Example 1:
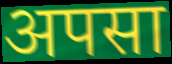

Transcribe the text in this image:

अपसा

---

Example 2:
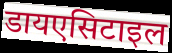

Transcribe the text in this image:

डायएसिटाइल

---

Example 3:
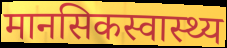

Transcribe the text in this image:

मानसिकस्वास्थ्य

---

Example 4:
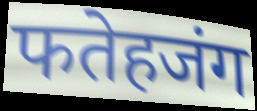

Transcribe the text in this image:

फतेहजंग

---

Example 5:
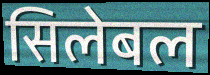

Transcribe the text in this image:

सिलेबल